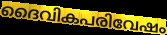
ദൈവികപരിവേഷം